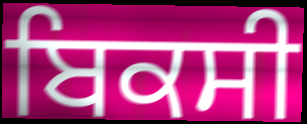
ਬਿਕਸੀ